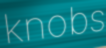
knobs